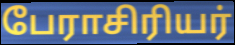
பேராசிரியர்